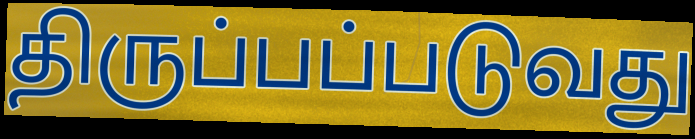
திருப்பப்படுவது